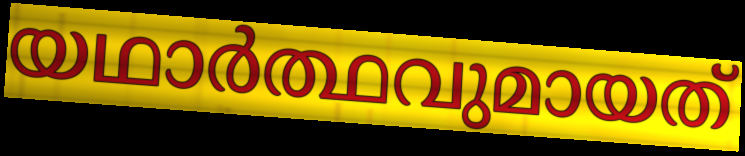
യഥാർത്ഥവുമായത്